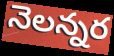
నెలన్నర